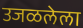
उजळलेला